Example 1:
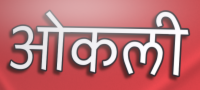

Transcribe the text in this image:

ओकली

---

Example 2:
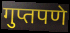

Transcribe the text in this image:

गुप्तपणे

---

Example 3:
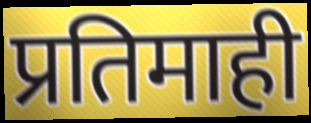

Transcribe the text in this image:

प्रतिमाही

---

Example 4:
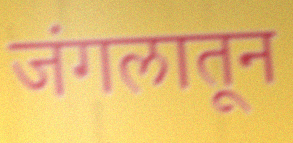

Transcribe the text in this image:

जंगलातून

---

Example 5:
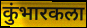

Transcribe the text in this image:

कुंभारकला